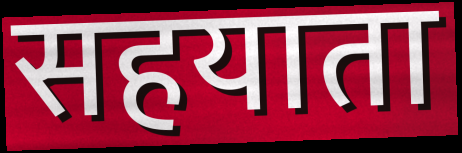
सहयाता